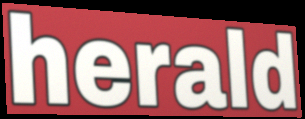
herald